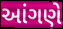
આંગણે